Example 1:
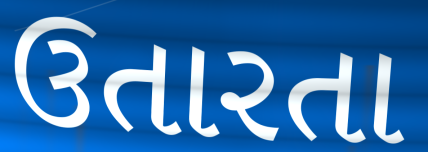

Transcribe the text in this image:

ઉતારતા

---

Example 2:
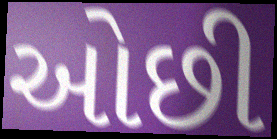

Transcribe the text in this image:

ઓછી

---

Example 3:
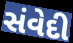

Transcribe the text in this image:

સંવેદી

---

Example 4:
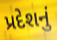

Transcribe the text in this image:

પ્રદેશનું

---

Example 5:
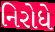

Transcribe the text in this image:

નિરોધે